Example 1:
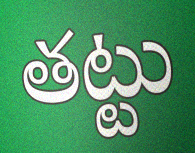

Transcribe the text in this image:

తట్టు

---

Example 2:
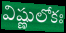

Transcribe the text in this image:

విష్ణులోకః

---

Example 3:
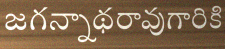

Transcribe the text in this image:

జగన్నాథరావుగారికి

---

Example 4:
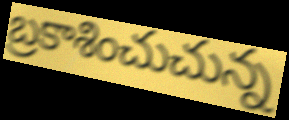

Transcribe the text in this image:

బ్రకాశించుచున్న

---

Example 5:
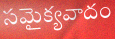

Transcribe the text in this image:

సమైక్యవాదం